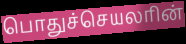
பொதுச்செயலரின்